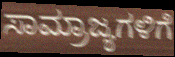
ಸಾಮ್ರಾಜ್ಯಗಳಿಗೆ